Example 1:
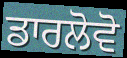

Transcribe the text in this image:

ਡਾਰਲੋਵੋ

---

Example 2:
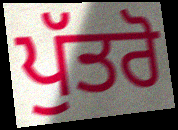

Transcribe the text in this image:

ਪੁੱਤਰੋ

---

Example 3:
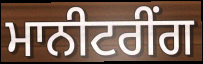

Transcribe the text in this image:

ਮਾਨੀਟਰੀਂਗ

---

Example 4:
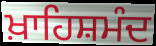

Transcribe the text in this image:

ਖ਼ਾਹਿਸ਼ਮੰਦ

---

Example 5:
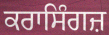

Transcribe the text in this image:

ਕਰਾਸਿੰਗਜ਼